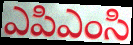
ఎపిఎంసి